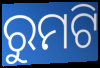
ରୁମଟି